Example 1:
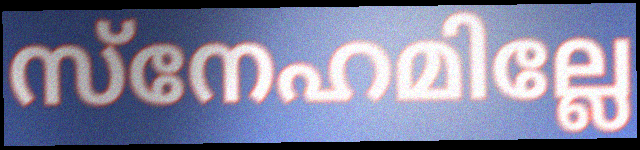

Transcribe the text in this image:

സ്നേഹമില്ലേ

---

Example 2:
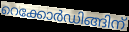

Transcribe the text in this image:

റെക്കോർഡിങ്ങിന്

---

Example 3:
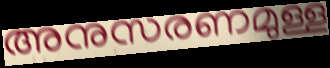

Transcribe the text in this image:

അനുസരണമുള്ള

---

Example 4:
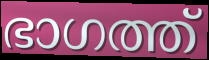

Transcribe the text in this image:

ഭാഗത്ത്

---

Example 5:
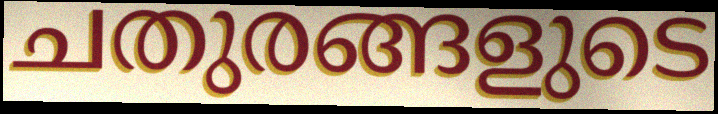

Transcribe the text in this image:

ചതുരങ്ങളുടെ